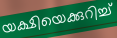
യക്ഷിയെക്കുറിച്ച്